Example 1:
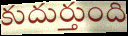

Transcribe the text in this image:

కుదుర్తుంది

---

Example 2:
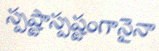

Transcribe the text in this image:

స్పష్టాస్పష్టంగానైనా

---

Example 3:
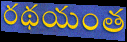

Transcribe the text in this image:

రథయంత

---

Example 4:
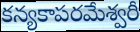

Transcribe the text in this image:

కన్యకాపరమేశ్వరీ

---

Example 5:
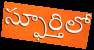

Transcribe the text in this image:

స్ఫూర్తిలో